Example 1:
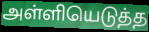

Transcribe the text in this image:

அள்ளியெடுத்த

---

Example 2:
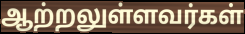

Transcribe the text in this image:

ஆற்றலுள்ளவர்கள்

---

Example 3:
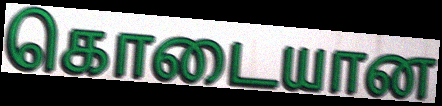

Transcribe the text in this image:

கொடையான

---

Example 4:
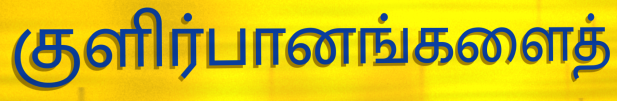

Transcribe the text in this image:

குளிர்பானங்களைத்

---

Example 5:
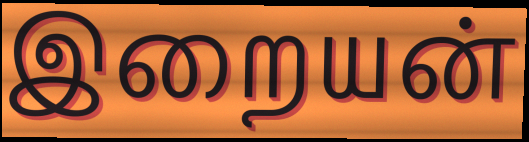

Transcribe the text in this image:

இறையன்